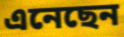
এনেছেন